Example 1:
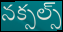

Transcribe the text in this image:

నక్సల్స్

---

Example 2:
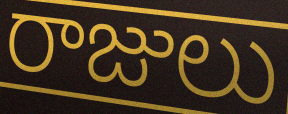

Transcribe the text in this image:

రాజులు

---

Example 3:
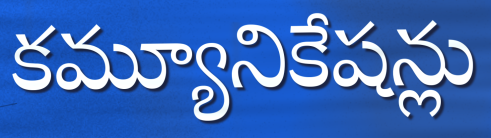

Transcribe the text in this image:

కమ్యూనికేషన్లు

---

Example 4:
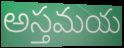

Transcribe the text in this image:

అస్తమయ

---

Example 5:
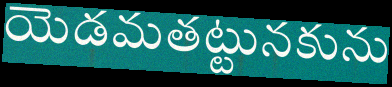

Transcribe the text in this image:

యెడమతట్టునకును